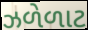
ઝળેળાટ